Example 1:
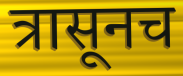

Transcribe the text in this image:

त्रासूनच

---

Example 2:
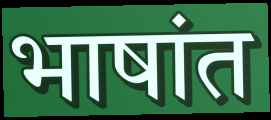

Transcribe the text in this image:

भाषांत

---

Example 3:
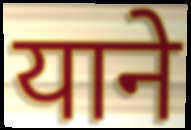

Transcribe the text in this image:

याने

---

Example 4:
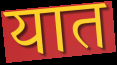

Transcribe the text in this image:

यात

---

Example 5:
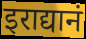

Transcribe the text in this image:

इराद्यानं